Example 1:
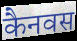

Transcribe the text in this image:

कैनवस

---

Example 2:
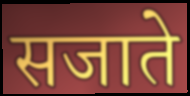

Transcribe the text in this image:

सजाते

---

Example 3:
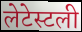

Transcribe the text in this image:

लेटेस्टली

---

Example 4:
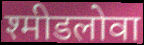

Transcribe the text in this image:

श्मीडलोवा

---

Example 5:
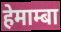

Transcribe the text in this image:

हेमाम्बा